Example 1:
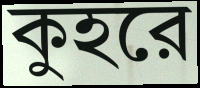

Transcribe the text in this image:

কুহরে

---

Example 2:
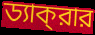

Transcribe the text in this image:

ড্যাক্‌রার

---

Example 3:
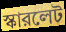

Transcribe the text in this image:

স্কারলেট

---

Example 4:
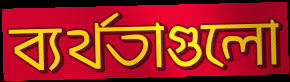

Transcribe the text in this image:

ব্যর্থতাগুলো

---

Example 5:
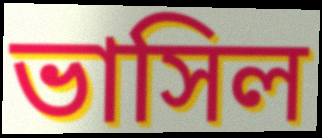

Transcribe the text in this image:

ভাসিল